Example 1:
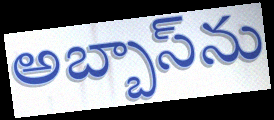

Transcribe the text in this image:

అబ్బాస్‌ను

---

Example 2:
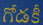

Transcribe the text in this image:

గోడకీ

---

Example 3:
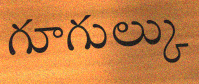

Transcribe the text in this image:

గూగుల్కు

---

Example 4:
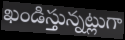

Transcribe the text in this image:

ఖండిస్తున్నట్లుగా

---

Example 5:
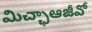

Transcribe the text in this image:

మిచ్ఛాఆజీవో